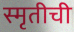
स्मृतीची